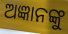
ଅଜ୍ଞାନଙ୍କୁ